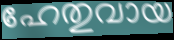
ഹേതുവായ